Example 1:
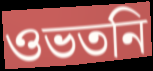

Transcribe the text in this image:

ওভতনি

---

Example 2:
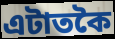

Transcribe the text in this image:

এটাতকৈ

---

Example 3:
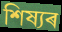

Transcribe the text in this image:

শিষ্যৰ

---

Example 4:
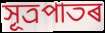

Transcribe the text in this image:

সূত্ৰপাতৰ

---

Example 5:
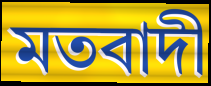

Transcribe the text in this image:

মতবাদী